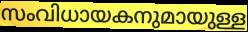
സംവിധായകനുമായുള്ള